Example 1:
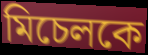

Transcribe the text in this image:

মিচেলকে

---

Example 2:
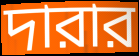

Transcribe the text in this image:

দারার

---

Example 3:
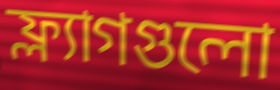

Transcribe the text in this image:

ফ্ল্যাগগুলো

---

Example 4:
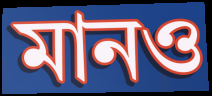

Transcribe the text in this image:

মানও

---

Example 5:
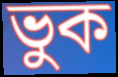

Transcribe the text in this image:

ভুক